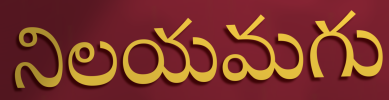
నిలయమగు